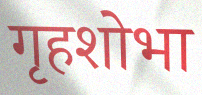
गृहशोभा